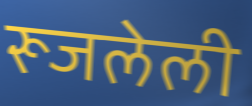
रूजलेली